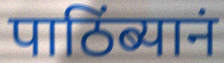
पाठिंब्यानं